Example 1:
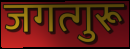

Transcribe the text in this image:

जगत्गुरू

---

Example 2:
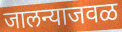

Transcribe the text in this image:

जालन्याजवळ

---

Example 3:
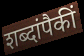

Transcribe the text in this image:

शब्दांपैकीं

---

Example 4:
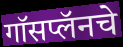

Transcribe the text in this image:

गॉसप्लॅनचे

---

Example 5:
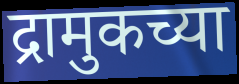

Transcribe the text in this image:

द्रामुकच्या